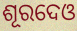
ଶୂରଦେଓ